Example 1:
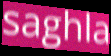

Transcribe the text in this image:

saghla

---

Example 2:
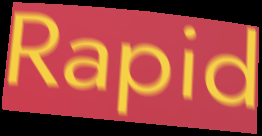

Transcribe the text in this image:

Rapid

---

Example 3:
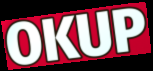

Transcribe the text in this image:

OKUP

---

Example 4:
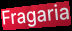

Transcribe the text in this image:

Fragaria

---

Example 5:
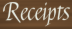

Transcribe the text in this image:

Receipts